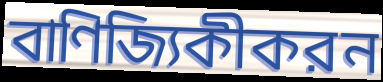
বাণিজ্যিকীকরন